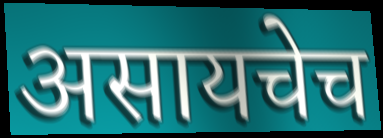
असायचेच